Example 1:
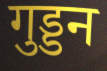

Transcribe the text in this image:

गुड्डन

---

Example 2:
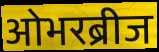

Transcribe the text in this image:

ओभरब्रीज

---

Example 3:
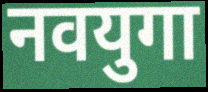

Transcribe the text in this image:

नवयुगा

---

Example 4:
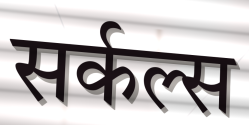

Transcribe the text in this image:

सर्कल्स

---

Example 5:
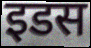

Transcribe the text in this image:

इडस